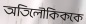
অতিলৌকিককে